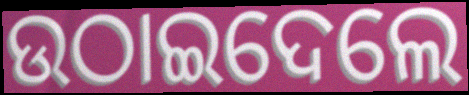
ଉଠାଇଦେଲେ